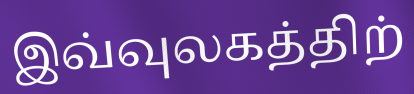
இவ்வுலகத்திற்